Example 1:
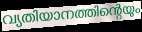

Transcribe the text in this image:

വ്യതിയാനത്തിന്റെയും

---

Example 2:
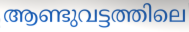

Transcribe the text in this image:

ആണ്ടുവട്ടത്തിലെ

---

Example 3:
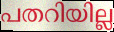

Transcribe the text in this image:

പതറിയില്ല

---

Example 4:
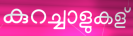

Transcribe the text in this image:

കുറച്ചാളുകള്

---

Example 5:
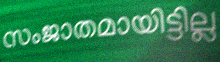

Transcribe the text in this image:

സംജാതമായിട്ടില്ല